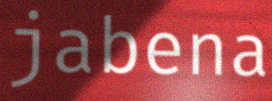
jabena